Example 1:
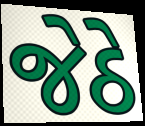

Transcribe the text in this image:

જેઠે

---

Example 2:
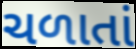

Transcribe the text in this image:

ચળાતાં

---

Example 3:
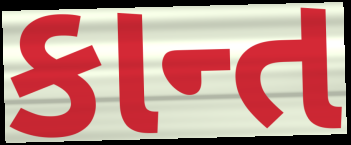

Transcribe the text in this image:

કાન્ત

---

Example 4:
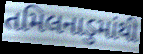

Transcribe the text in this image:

તમિલનાડુમાંથી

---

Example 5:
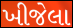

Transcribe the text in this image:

ખીજેલા